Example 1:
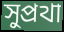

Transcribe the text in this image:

সুপ্রথা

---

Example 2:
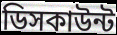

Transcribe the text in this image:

ডিসকাউন্ট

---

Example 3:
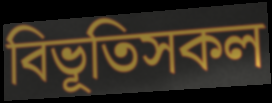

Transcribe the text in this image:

বিভূতিসকল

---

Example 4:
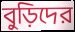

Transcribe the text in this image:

বুড়িদের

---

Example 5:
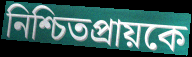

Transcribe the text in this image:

নিশ্চিতপ্রায়কে